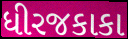
ધીરજકાકા